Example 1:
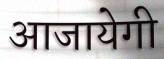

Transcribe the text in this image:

आजायेगी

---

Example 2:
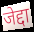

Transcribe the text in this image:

जेद्दा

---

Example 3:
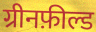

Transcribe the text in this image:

ग्रीनफ़ील्ड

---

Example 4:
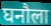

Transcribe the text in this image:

घनौला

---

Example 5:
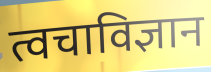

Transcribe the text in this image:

त्वचाविज्ञान